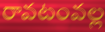
రావటంవల్ల